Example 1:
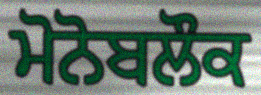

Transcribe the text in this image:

ਮੋਨੋਬਲੌਕ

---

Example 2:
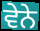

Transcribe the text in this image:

ਵੇਨੇ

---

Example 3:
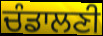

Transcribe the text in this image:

ਚੰਡਾਲਣੀ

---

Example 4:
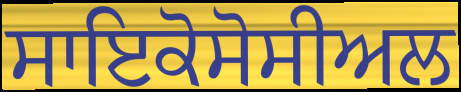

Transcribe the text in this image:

ਸਾਇਕੋਸੋਸੀਅਲ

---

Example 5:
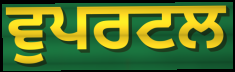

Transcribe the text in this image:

ਵੁਪਰਟਲ